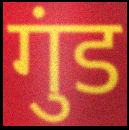
गुंड